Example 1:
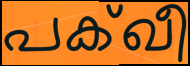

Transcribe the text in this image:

പക്ഖീ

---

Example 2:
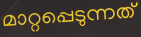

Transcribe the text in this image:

മാറ്റപ്പെടുന്നത്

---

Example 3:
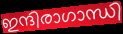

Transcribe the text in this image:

ഇന്ദിരാഗാന്ധി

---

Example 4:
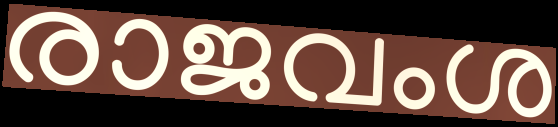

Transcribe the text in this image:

രാജവംശ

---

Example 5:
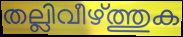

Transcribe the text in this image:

തല്ലിവീഴ്ത്തുക